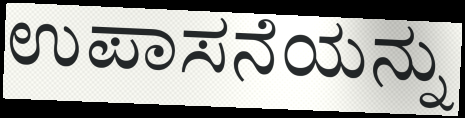
ಉಪಾಸನೆಯನ್ನು